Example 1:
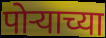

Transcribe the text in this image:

पोऱ्याच्या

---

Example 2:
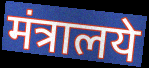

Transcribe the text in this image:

मंत्रालये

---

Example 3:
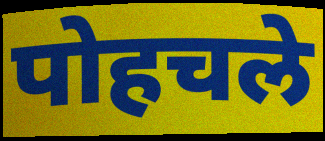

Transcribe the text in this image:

पोहचले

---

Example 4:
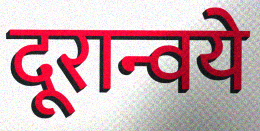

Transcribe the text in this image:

दूरान्वये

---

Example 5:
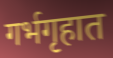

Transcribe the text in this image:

गर्भगृहात